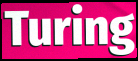
Turing